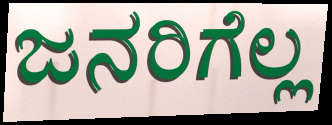
ಜನರಿಗೆಲ್ಲ